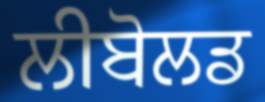
ਲੀਬੋਲਡ